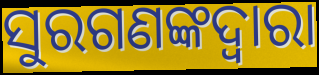
ସୁରଗଣଙ୍କଦ୍ୱାରା